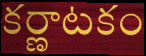
కర్ణాటకం